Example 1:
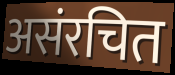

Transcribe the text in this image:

असंरचित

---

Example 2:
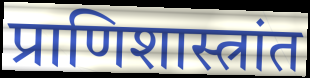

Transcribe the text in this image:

प्राणिशास्त्रांत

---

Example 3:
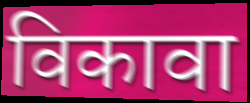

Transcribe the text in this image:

विकावा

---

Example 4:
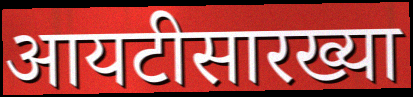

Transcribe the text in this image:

आयटीसारख्या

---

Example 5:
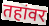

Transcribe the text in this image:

तहांवर